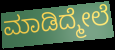
ಮಾಡಿದ್ಮೇಲೆ